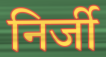
निर्जी